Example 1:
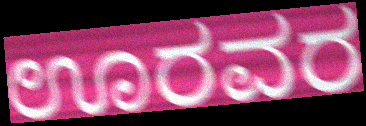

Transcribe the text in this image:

ಊರವರ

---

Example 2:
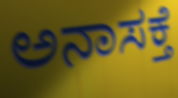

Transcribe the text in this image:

ಅನಾಸಕ್ತೆ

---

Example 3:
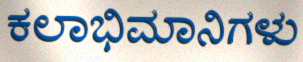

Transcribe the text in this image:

ಕಲಾಭಿಮಾನಿಗಳು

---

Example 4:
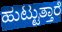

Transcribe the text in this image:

ಹುಟ್ಟುತ್ತಾರೆ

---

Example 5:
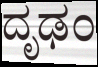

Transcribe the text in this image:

ದೃಢಂ